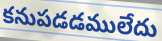
కనుపడడములేదు